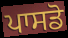
ਪਾਸਡੋ